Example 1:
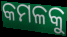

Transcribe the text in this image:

କମଳକୁ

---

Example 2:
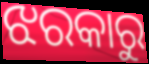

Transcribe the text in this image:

ଝରକାରୁ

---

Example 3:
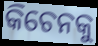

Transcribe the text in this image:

କିଚେନକୁ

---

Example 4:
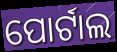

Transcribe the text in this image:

ପୋର୍ଟାଲ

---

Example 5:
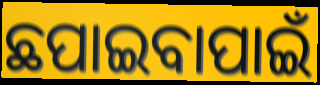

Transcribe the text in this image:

ଛପାଇବାପାଇଁ